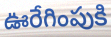
ఊరేగింపుకి